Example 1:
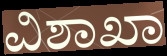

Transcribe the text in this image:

ವಿಶಾಖಾ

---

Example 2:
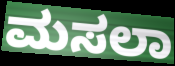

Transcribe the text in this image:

ಮಸಲಾ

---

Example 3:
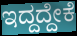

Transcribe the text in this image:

ಇದ್ದದ್ದೇಕೆ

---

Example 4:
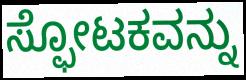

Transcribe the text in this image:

ಸ್ಫೋಟಕವನ್ನು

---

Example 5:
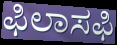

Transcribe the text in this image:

ಫಿಲಾಸಫಿ